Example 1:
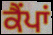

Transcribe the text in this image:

ਕੈੰਪਾਂ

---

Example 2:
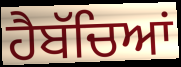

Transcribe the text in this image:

ਹੈਬੱਚਿਆਂ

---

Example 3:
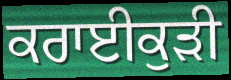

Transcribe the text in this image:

ਕਰਾਈਕੁੜੀ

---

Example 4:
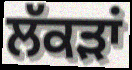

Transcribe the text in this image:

ਲੱਕੜਾਂ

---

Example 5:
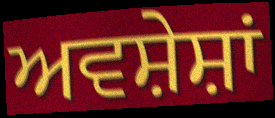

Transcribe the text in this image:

ਅਵਸ਼ੇਸ਼ਾਂ